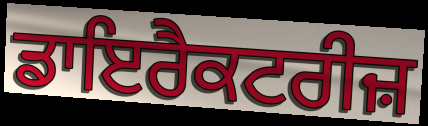
ਡਾਇਰੈਕਟਰੀਜ਼